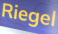
Riegel